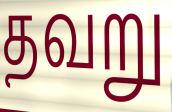
தவறு